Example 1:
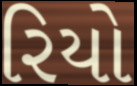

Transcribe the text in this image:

રિયો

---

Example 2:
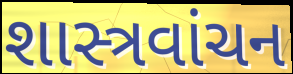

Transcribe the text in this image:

શાસ્ત્રવાંચન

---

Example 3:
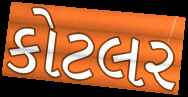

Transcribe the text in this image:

કોટલર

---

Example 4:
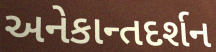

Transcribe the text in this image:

અનેકાન્તદર્શન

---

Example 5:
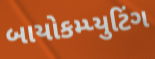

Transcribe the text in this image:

બાયોકમ્પ્યુટિંગ